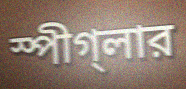
স্পীগ্‌লার